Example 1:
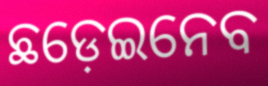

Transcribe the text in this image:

ଛଡ଼େଇନେବ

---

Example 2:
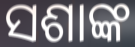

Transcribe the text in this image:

ସଶାଙ୍କ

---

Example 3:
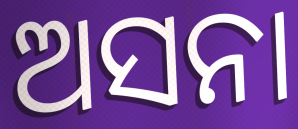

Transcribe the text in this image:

ଅସନା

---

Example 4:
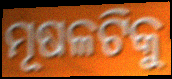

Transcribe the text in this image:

ମୂଷଳଟିକୁ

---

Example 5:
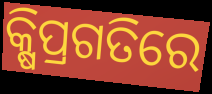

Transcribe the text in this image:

କ୍ଷିପ୍ରଗତିରେ